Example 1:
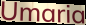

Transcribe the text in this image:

Umaria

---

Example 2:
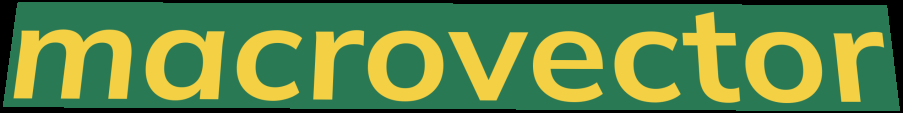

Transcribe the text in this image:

macrovector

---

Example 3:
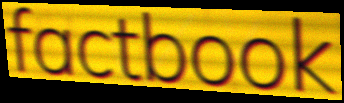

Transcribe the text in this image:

factbook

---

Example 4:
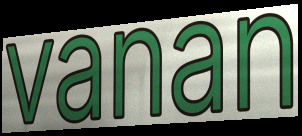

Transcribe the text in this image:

vanan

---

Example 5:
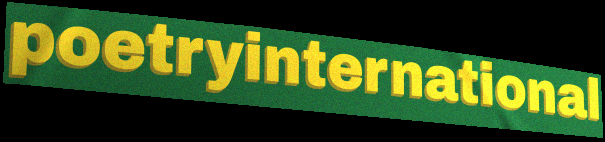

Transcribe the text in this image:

poetryinternational